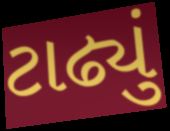
ટાઢ્યું